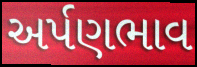
અર્પણભાવ